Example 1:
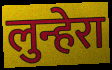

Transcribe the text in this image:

लुन्हेरा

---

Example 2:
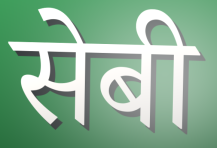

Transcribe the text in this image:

सेबी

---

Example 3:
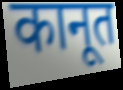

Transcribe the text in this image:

कानूत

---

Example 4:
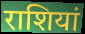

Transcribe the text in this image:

राशियां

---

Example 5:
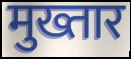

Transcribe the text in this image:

मुख्तार